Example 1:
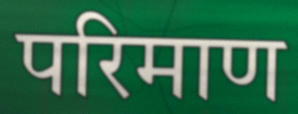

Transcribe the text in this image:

परिमाण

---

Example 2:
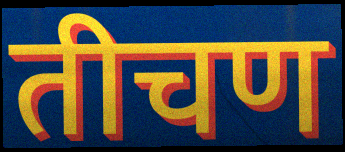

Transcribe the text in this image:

तीचण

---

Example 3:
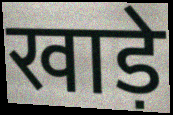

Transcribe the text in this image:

खाड़े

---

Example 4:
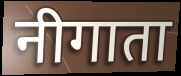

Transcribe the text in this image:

नीगाता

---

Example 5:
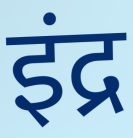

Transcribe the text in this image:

इंद्र